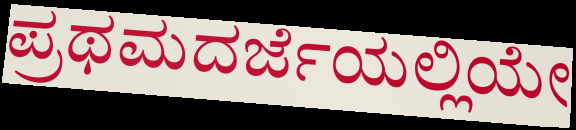
ಪ್ರಥಮದರ್ಜೆಯಲ್ಲಿಯೇ